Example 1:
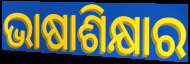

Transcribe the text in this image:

ଭାଷାଶିକ୍ଷାର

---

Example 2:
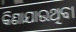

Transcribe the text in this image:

କିଣାଯାଉଥିବା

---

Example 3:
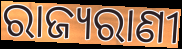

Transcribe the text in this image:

ରାଜ୍ୟରାଣୀ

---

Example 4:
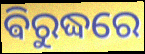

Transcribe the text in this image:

ଵିରୁଦ୍ଧରେ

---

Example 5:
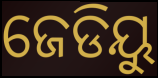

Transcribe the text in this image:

ଜେଡିୟୁ